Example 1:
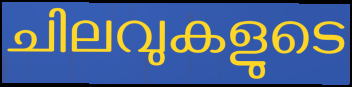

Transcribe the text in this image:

ചിലവുകളുടെ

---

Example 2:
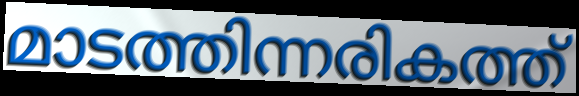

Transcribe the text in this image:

മാടത്തിന്നരികത്ത്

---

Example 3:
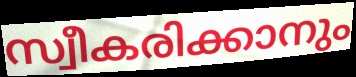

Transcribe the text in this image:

സ്വീകരിക്കാനും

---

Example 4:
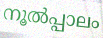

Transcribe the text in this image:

നൂൽപ്പാലം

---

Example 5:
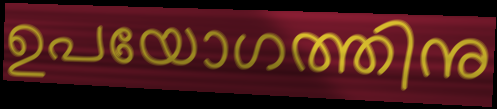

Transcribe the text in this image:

ഉപയോഗത്തിനു